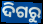
ଦିଗରୁ